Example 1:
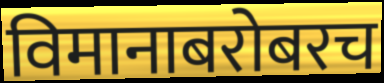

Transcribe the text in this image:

विमानाबरोबरच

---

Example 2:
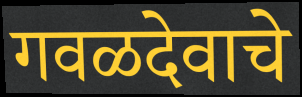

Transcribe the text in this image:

गवळदेवाचे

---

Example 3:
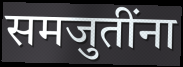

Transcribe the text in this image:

समजुतींना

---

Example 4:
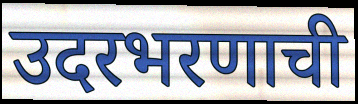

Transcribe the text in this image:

उदरभरणाची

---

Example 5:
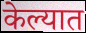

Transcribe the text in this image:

केल्यात